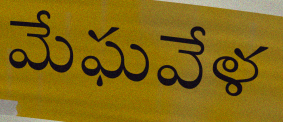
మేఘవేళ